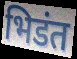
भिडंत